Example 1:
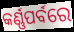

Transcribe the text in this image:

କର୍ଣ୍ଣପର୍ବରେ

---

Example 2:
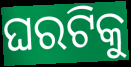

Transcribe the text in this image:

ଘରଟିକୁ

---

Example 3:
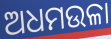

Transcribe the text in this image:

ଅଧମଉଳା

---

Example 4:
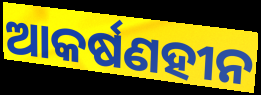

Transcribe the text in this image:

ଆକର୍ଷଣହୀନ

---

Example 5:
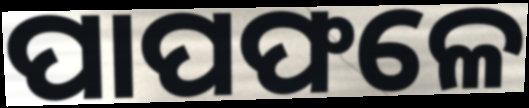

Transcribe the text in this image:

ପାପଫଳେ